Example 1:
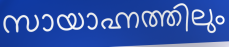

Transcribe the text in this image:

സായാഹ്നത്തിലും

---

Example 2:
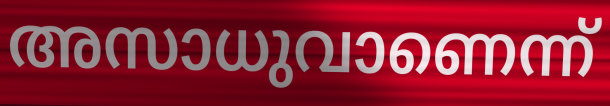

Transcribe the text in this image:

അസാധുവാണെന്ന്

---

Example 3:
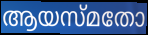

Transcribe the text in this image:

ആയസ്മതോ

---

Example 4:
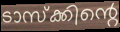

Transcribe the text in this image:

ടാസ്ക്കിന്റെ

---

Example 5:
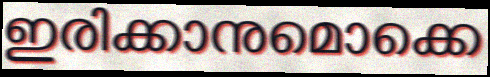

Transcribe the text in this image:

ഇരിക്കാനുമൊക്കെ